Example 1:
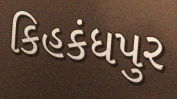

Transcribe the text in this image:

કિહકંધપુર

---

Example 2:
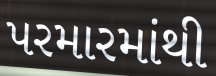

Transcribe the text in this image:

પરમારમાંથી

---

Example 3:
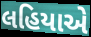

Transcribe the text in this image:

લહિયાએ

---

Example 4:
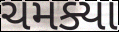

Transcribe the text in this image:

ચમક્યા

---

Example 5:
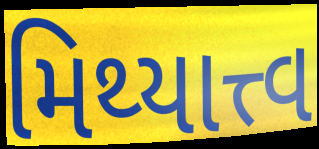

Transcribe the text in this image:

મિથ્યાત્ત્વ